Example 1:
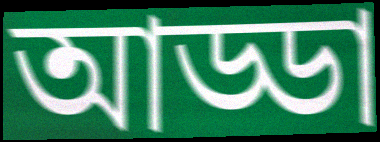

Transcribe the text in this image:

আড্ডা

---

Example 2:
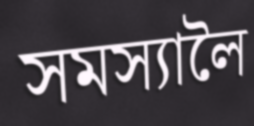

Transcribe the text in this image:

সমস্যালৈ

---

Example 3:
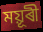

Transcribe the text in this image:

ময়ূৰী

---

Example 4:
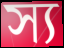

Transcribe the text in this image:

স্য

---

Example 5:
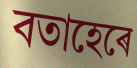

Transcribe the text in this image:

বতাহেৰে